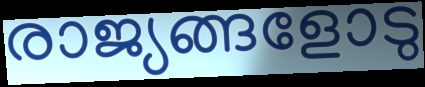
രാജ്യങ്ങളോടു